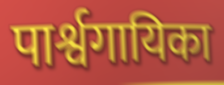
पार्श्वगायिका